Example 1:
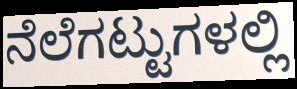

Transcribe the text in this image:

ನೆಲೆಗಟ್ಟುಗಳಲ್ಲಿ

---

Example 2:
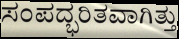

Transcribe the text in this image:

ಸಂಪದ್ಭರಿತವಾಗಿತ್ತು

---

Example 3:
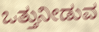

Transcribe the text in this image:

ಒತ್ತುನೀಡುವ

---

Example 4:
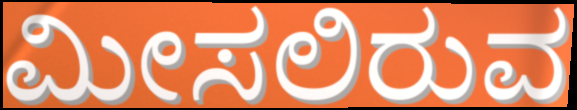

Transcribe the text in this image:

ಮೀಸಲಿರುವ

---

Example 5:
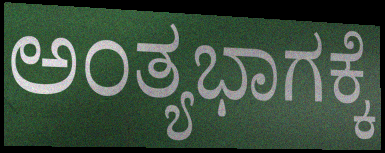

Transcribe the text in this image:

ಅಂತ್ಯಭಾಗಕ್ಕೆ